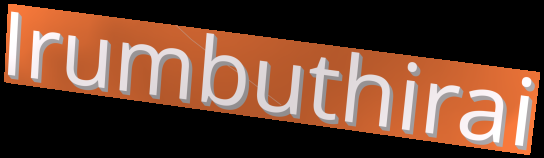
Irumbuthirai